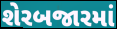
શેરબજારમાં